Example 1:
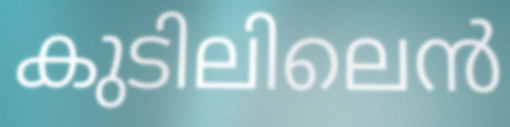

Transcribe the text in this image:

കുടിലിലെൻ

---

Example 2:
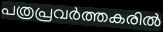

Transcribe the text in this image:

പത്രപ്രവർത്തകരിൽ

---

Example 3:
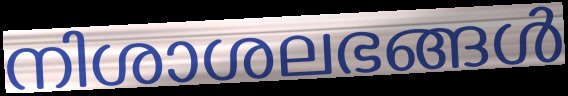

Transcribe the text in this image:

നിശാശലഭങ്ങൾ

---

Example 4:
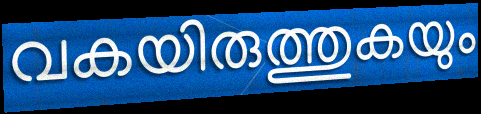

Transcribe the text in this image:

വകയിരുത്തുകയും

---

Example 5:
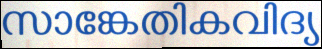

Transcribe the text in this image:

സാങ്കേതികവിദ്യ